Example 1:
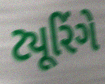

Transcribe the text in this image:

ટ્યૂરિંગે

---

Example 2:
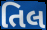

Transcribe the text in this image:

તિલ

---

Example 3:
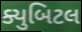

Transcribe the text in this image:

ક્યુબિટલ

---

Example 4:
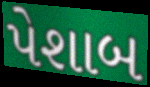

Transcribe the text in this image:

પેશાબ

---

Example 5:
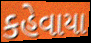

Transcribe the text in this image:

કહેવાયા